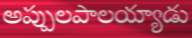
అప్పులపాలయ్యాడు